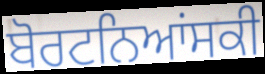
ਬੋਰਟਨਿਆਂਸਕੀ